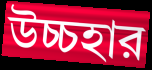
উচ্চহার